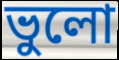
ভুলো